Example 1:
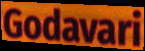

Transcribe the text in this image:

Godavari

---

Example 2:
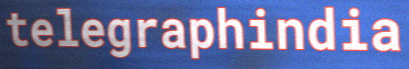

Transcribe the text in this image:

telegraphindia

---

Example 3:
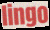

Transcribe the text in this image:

lingo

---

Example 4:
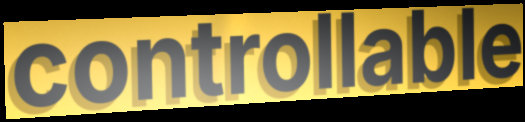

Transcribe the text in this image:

controllable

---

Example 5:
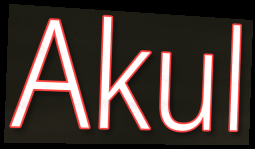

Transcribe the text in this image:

Akul